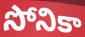
సోనికా